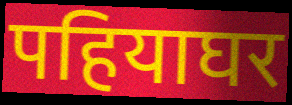
पहियाघर